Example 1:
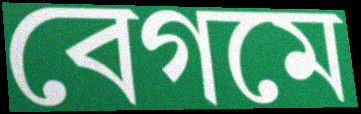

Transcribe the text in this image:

বেগমে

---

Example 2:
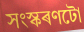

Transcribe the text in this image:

সংস্কৰণটো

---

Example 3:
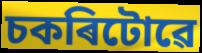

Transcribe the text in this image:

চকৰিটোৱে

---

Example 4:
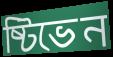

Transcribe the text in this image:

ষ্টিভেন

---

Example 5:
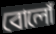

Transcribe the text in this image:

বোলোঁ